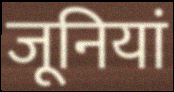
जूनियां